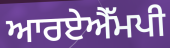
ਆਰਏਐੱਮਪੀ